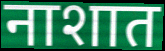
नाशात